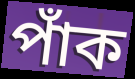
পাঁক